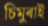
চিমুৰাই